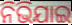
ନିଭିଯାଇ